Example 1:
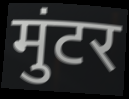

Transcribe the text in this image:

मुंटर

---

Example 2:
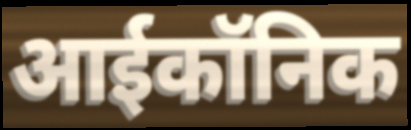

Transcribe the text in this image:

आईकॉनिक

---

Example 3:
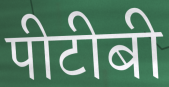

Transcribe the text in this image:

पीटीबी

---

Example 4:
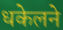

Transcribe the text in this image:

धकेलने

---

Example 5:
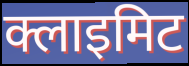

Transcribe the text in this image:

क्लाइमिट